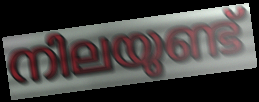
നിലയുണ്ട്